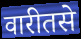
वारीतसे